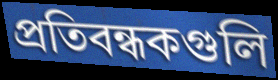
প্রতিবন্ধকগুলি